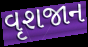
વૃશજાન